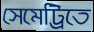
সেমেট্রিতে